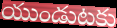
యుండుటకు